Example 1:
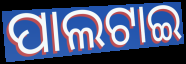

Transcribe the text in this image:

ପାଲଟାଇ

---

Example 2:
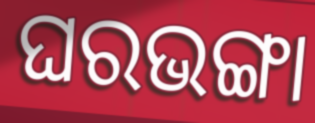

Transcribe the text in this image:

ଘରଭଙ୍ଗା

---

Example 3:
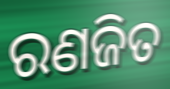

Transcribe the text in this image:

ରଣଜିତ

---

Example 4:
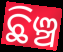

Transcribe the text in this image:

ଛିଞ୍ଚ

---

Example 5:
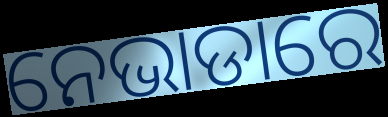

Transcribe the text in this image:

ନେଭାଡାରେ